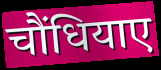
चौंधियाए